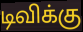
டிவிக்கு